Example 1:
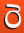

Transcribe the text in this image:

రె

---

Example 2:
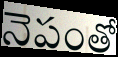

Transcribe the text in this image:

నెపంతో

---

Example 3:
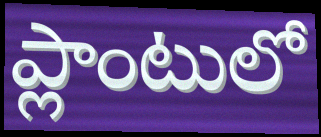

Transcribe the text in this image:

ప్లాంటులో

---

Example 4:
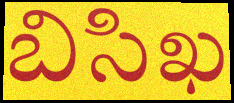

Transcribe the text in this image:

బిసిఖ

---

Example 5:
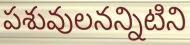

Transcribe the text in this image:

పశువులనన్నిటిని